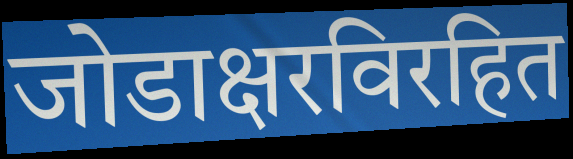
जोडाक्षरविरहित